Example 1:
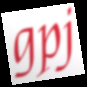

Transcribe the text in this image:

gpj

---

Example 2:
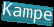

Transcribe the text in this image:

Kampe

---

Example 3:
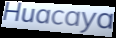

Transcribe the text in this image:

Huacaya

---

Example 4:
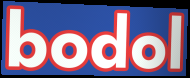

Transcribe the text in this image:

bodol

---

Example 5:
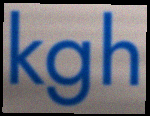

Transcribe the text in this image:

kgh